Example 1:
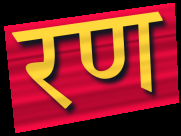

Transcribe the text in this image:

रण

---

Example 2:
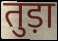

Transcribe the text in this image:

तुड़ा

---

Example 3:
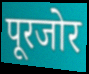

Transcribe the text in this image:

पूरजोर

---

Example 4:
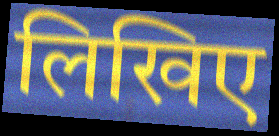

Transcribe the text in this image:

लिखिए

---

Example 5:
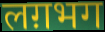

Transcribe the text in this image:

लग़भग